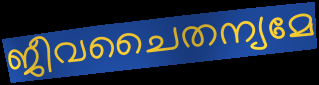
ജീവചൈതന്യമേ